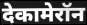
देकामेरॉन